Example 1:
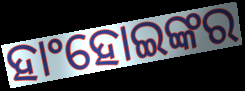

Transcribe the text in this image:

ହାଂହୋଇଙ୍କର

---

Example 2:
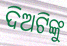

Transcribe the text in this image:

ଦିଅଟିଙ୍କୁ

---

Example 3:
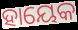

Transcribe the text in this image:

ହାୟେକ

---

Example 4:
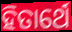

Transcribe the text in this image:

ହିତାର୍ଥେ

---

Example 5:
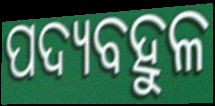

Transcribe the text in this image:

ପଦ୍ୟବହୁଳ